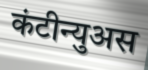
कंटीन्युअस